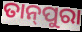
ତାନ୍‌ପୁରା